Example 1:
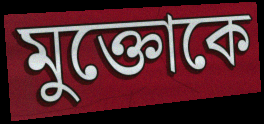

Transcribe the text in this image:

মুক্তোকে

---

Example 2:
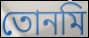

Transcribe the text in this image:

তোনমি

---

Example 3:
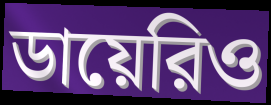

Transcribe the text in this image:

ডায়েরিও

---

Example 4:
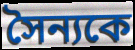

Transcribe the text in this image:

সৈন্যকে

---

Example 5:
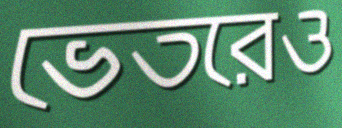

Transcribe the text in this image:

ভেতরেও